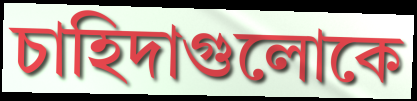
চাহিদাগুলোকে